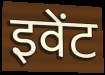
इवेंट